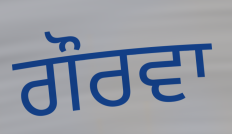
ਗੌਰਵਾ